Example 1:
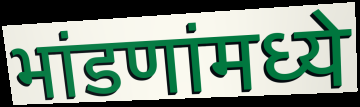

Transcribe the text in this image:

भांडणांमध्ये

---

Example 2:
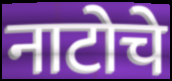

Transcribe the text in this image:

नाटोचे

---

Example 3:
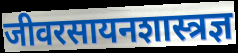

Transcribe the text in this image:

जीवरसायनशास्त्रज्ञ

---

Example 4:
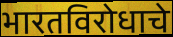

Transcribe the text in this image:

भारतविरोधाचे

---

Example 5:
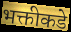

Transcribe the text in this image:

भक्तीकडे